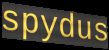
spydus